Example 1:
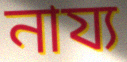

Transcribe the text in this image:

নায্য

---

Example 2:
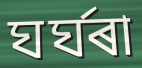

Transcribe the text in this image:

ঘৰ্ঘৰা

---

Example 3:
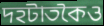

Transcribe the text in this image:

দহটাতকৈও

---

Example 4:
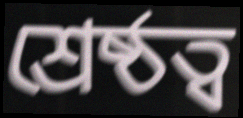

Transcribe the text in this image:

শ্ৰেষ্ঠত্ব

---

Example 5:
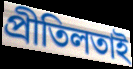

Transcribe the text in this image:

প্ৰীতিলতাই